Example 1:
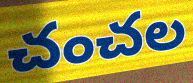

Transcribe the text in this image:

చంచల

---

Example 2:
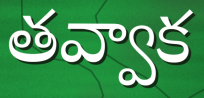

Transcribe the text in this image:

తవ్వాక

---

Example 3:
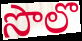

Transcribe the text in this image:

సొలొ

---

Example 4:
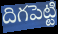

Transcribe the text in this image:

దిగపెట్టి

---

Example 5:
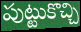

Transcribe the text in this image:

పుట్టుకొచ్చి